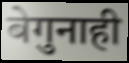
बेगुनाही